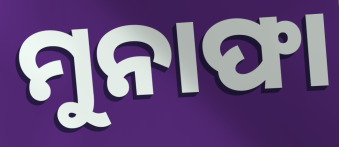
ମୁନାଫା